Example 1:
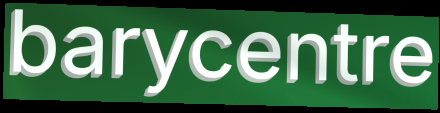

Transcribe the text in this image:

barycentre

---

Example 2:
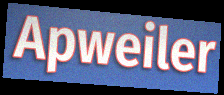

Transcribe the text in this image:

Apweiler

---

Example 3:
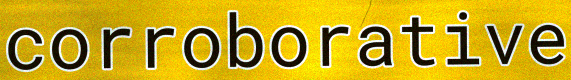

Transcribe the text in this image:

corroborative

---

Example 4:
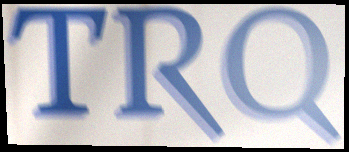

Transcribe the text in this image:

TRQ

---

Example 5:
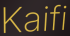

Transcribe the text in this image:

Kaifi